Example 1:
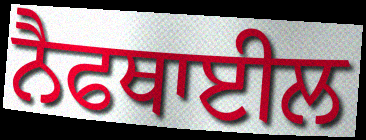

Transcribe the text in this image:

ਨੈਫਥਾਈਲ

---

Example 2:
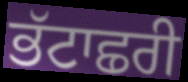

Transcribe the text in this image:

ਭੱਟਾਛਰੀ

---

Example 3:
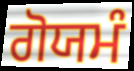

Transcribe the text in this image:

ਗੋਯਮੰ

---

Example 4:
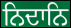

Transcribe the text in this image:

ਨਿਦਾਨਿ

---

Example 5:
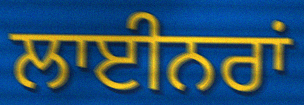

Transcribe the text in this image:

ਲਾਈਨਰਾਂ